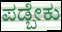
ಪಡ್ಬೇಕು